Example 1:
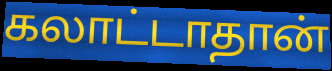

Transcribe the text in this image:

கலாட்டாதான்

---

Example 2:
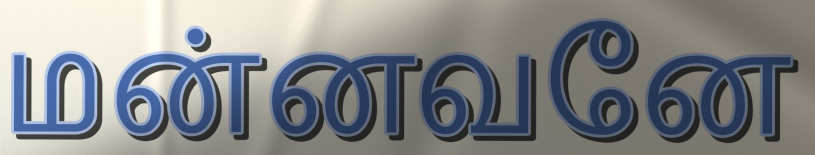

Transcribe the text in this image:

மன்னவனே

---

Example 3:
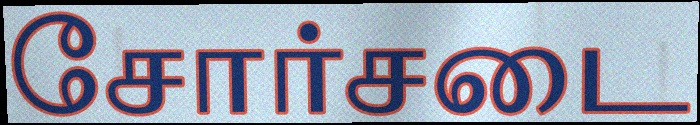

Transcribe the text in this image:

சோர்சடை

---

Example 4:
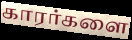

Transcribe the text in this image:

காரர்களை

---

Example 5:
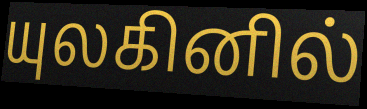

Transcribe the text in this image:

யுலகினில்